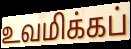
உவமிக்கப்